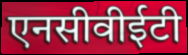
एनसीवीईटी